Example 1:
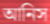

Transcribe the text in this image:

আনিস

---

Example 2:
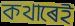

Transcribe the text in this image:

কথাৰেই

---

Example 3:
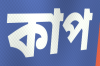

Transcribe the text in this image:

কাপ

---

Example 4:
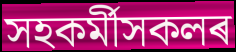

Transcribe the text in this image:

সহকৰ্মীসকলৰ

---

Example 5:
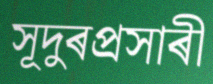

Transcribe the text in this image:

সূদুৰপ্ৰসাৰী